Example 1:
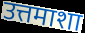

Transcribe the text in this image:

उत्तमाशा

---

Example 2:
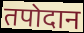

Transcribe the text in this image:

तपोदान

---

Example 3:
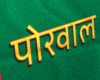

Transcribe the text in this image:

पोरवाल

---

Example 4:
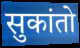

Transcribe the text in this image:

सुकांतो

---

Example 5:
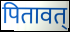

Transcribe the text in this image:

पितावत्